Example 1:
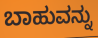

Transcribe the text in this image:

ಬಾಹುವನ್ನು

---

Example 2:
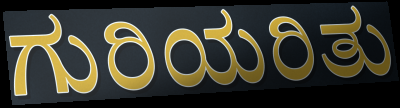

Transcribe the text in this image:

ಗುರಿಯರಿತು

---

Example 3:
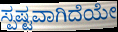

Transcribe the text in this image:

ಸ್ಪಷ್ಟವಾಗಿದೆಯೇ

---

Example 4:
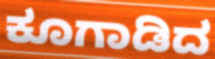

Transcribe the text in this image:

ಕೂಗಾಡಿದ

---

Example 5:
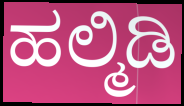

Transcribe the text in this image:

ಹಲ್ಮಿಡಿ